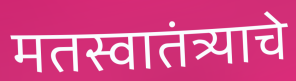
मतस्वातंत्र्याचे